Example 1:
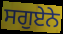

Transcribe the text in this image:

ਸਗੁਏਨੇ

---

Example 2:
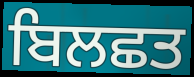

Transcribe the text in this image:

ਬਿਲਛਤ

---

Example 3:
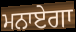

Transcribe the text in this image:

ਮਨਾਏਗਾ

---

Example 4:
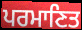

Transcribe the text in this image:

ਪਰਮਾਣਿਤ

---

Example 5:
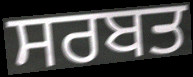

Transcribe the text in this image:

ਸਰਬਤ